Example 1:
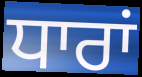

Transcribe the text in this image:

ਧਾਰਾਂ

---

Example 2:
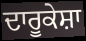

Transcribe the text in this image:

ਦਾਰੂਕੇਸ਼ਾ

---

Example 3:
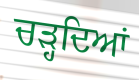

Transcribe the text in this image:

ਚੜ੍ਹਦਿਆਂ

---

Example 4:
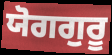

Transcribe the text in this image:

ਯੋਗਗੁਰੂ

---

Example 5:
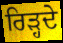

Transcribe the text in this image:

ਰਿੜ੍ਹਦੇ